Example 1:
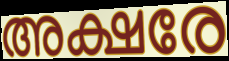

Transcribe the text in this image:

അക്ഷരേ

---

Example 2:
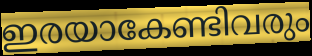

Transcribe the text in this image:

ഇരയാകേണ്ടിവരും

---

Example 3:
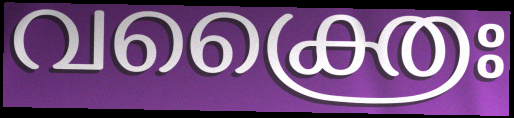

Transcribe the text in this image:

വക്ത്രൈഃ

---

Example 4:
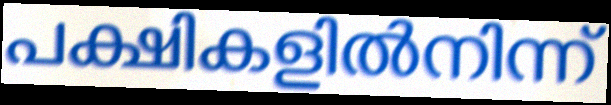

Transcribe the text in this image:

പക്ഷികളിൽനിന്ന്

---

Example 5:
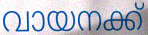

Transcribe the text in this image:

വായനക്ക്